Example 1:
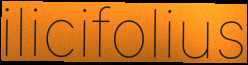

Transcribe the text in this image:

ilicifolius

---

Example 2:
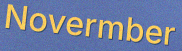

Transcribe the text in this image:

Novermber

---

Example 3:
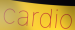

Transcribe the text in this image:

cardio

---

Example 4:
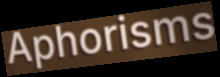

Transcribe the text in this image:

Aphorisms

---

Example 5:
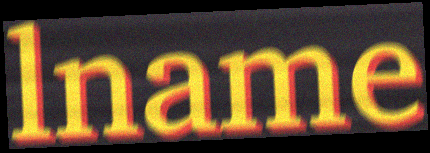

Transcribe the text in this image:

lname